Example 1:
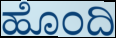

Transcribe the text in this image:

ಹೊಂದಿ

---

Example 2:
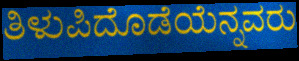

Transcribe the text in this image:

ತಿಳುಪಿದೊಡೆಯೆನ್ನವರು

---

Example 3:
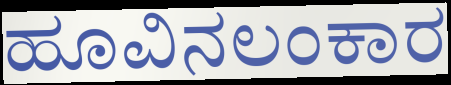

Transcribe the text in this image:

ಹೂವಿನಲಂಕಾರ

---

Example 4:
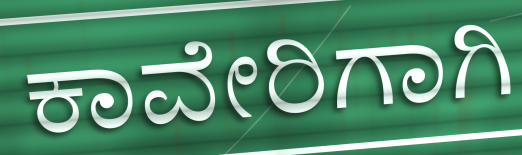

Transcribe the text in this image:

ಕಾವೇರಿಗಾಗಿ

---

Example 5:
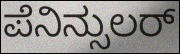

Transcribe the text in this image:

ಪೆನಿನ್ಸುಲರ್